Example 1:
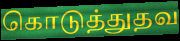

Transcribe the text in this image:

கொடுத்துதவ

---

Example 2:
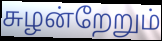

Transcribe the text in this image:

சுழன்றேறும்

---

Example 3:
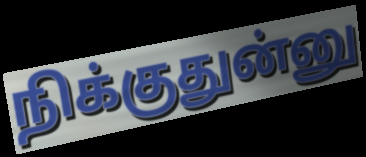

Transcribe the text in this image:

நிக்குதுன்னு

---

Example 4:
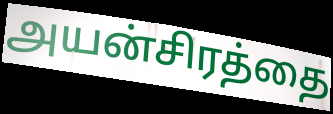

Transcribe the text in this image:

அயன்சிரத்தை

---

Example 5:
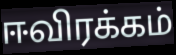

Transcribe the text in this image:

ஈவிரக்கம்